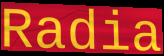
Radia